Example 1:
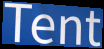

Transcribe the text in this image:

Tent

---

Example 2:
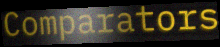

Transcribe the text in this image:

Comparators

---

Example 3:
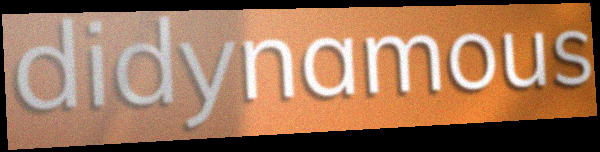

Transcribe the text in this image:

didynamous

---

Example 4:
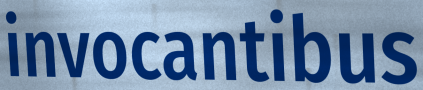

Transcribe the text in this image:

invocantibus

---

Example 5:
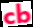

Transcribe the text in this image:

cb